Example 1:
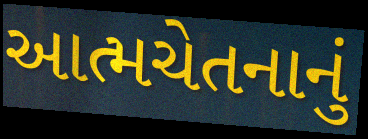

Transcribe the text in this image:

આત્મચેતનાનું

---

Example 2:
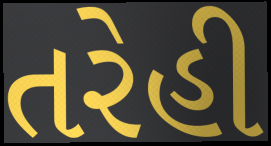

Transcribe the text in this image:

તરેહી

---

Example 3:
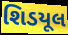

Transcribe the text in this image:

શિડયૂલ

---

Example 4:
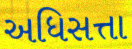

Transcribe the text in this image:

અધિસત્તા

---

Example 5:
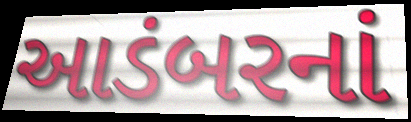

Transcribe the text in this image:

આડંબરનાં